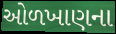
ઓળખાણના